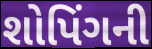
શોપિંગની